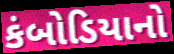
કંબોડિયાનો